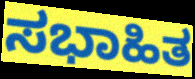
ಸಭಾಹಿತ